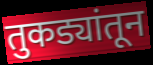
तुकड्यांतून